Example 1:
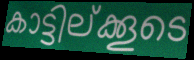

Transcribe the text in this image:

കാട്ടില്ക്കൂടെ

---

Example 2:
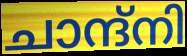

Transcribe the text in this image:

ചാന്ദ്നി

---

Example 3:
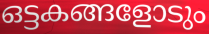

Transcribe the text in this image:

ഒട്ടകങ്ങളോടും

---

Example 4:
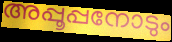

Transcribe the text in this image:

അപ്പൂപ്പനോടും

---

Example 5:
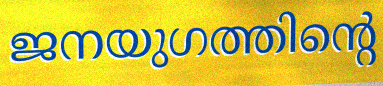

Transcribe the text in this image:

ജനയുഗത്തിന്റെ